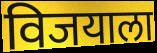
विजयाला